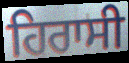
ਹਿਰਾਸੀ